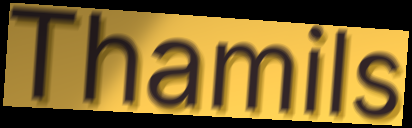
Thamils